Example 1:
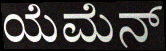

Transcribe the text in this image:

ಯೆಮೆನ್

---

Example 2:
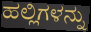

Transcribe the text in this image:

ಹಲ್ಲಿಗಳನ್ನು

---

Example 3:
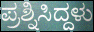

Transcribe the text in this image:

ಪ್ರಶ್ನಿಸಿದ್ದಳು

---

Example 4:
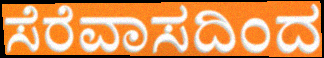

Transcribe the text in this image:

ಸೆರೆವಾಸದಿಂದ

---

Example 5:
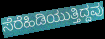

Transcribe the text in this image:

ಸೆರೆಹಿಡಿಯುತ್ತಿದ್ದವು